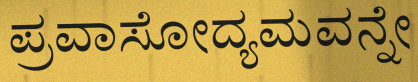
ಪ್ರವಾಸೋದ್ಯಮವನ್ನೇ